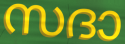
സദാ